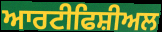
ਆਰਟੀਫਿਸ਼ੀਅਲ